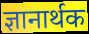
ज्ञानार्थक